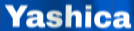
Yashica